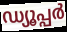
ഡ്യൂപ്പർ